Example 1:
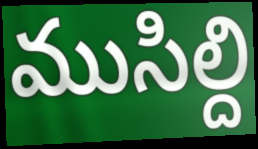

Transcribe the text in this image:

ముసిల్ది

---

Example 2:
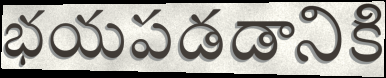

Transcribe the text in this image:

భయపడడానికి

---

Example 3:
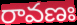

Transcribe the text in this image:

రావణః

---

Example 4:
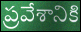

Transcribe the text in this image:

ప్రవేశానికి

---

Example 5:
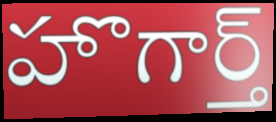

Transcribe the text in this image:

హొగార్త్